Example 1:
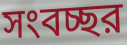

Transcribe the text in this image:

সংবচ্ছর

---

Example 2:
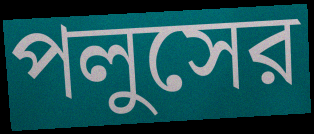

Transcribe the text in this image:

পলুসের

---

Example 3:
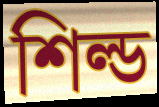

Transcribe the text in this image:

শিল্ড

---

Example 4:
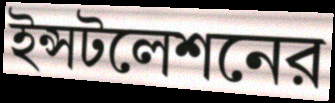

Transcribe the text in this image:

ইন্সটলেশনের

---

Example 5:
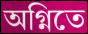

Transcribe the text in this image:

অগ্নিতে